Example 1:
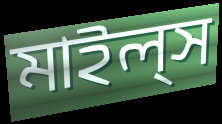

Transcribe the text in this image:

মাইল্‌স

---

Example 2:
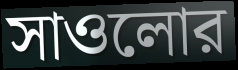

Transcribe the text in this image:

সাওলোর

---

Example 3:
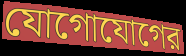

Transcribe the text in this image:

যোগোযোগের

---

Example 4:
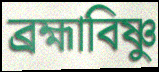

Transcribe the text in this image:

ব্রহ্মাবিষ্ণু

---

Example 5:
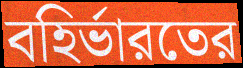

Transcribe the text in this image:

বহির্ভারতের